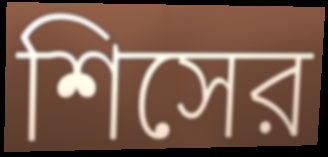
শিসের